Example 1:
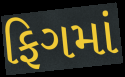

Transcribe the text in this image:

ફિગમાં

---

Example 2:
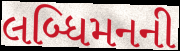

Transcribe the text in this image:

લબ્ધિમનની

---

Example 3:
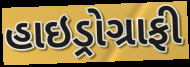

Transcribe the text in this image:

હાઇડ્રોગ્રાફી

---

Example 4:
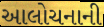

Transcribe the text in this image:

આલોચનાની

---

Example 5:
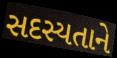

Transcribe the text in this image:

સદસ્યતાને